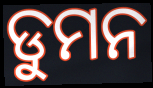
ଡୁମନ